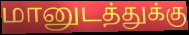
மானுடத்துக்கு